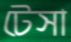
টেসা